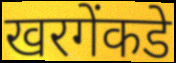
खरगेंकडे